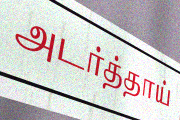
அடர்த்தாய்